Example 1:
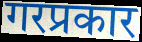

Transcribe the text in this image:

गरप्रकार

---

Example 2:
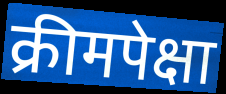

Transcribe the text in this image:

क्रीमपेक्षा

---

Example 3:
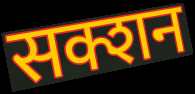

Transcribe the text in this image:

सक्शन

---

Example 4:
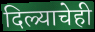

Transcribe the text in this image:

दिल्याचेही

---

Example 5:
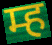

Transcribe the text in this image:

म्ह